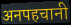
अनपहचानी